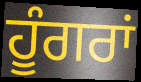
ਹੂੰਗਰਾਂ